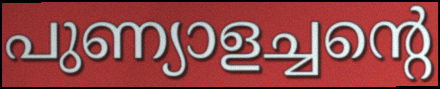
പുണ്യാളച്ചന്റെ